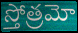
స్తోత్రమో